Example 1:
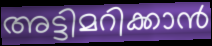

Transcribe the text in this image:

അട്ടിമറിക്കാൻ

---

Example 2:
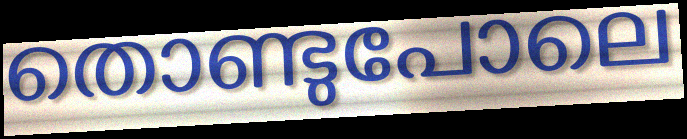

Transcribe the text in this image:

തൊണ്ടുപോലെ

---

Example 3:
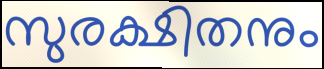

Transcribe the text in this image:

സുരക്ഷിതനും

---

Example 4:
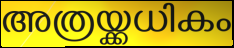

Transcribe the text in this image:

അത്രയ്ക്കധികം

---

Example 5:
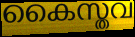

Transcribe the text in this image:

കൈസ്തവ